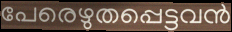
പേരെഴുതപ്പെട്ടവൻ